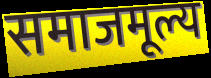
समाजमूल्य